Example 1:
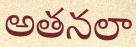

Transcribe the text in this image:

అతనలా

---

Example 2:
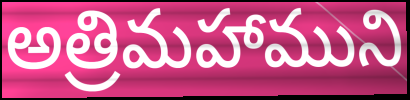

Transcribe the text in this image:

అత్రిమహాముని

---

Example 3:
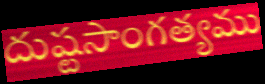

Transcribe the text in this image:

దుష్టసాంగత్యము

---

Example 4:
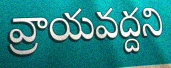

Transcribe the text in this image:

వ్రాయవద్దని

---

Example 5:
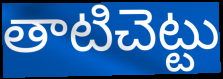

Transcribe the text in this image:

తాటిచెట్టు